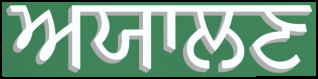
ਅਯਾਲਣ